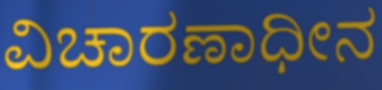
ವಿಚಾರಣಾಧೀನ